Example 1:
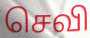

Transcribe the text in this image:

செவி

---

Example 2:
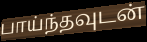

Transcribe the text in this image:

பாய்ந்தவுடன்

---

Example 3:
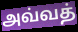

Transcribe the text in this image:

அவ்வத்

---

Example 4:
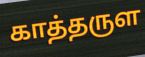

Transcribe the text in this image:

காத்தருள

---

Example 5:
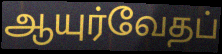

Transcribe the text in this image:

ஆயுர்வேதப்